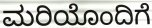
ಮರಿಯೊಂದಿಗೆ